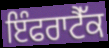
ਇੰਫਰਾਟੈੱਕ